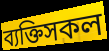
ব্যক্তিসকল